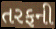
તરફની